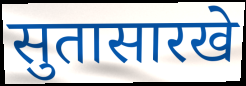
सुतासारखे